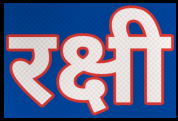
रक्षी